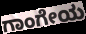
ಗಾಂಗೇಯ